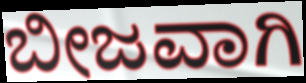
ಬೀಜವಾಗಿ